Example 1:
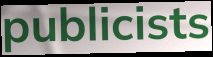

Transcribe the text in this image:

publicists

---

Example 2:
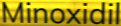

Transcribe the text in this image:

Minoxidil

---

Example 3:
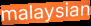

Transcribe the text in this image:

malaysian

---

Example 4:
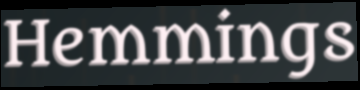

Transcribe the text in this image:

Hemmings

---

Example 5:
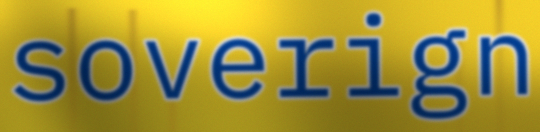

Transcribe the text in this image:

soverign